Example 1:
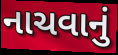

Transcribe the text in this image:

નાચવાનું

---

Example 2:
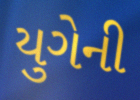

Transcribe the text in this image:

યુગેની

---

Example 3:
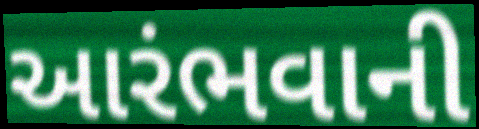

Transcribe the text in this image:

આરંભવાની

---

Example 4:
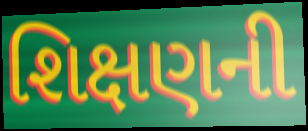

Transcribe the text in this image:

શિક્ષણની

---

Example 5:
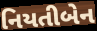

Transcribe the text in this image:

નિયતીબેન